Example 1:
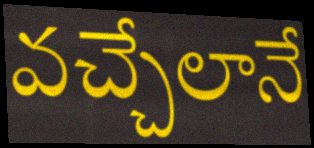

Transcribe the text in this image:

వచ్చేలానే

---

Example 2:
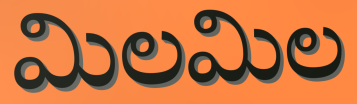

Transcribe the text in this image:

మిలమిల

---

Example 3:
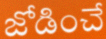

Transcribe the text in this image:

జోడించే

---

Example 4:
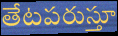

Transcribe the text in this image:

తేటపరుస్తూ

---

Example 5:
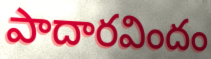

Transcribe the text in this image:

పాదారవిందం